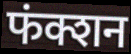
फंक्शन